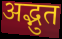
अद्भुत